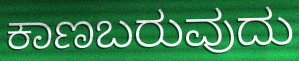
ಕಾಣಬರುವುದು